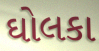
ઘોલકા